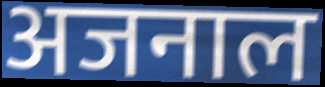
अजनाल